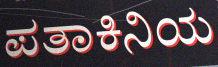
ಪತಾಕಿನಿಯ